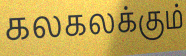
கலகலக்கும்